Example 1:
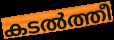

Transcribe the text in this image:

കടൽത്തീ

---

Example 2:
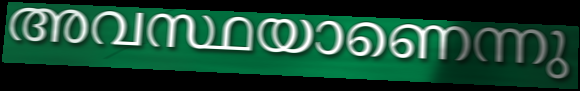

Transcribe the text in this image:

അവസ്ഥയാണെന്നു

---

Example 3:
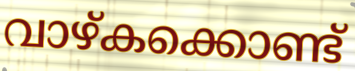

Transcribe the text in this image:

വാഴ്കക്കൊണ്ട്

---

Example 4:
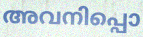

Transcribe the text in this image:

അവനിപ്പൊ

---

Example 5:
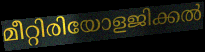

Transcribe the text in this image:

മീറ്റിരിയോളജിക്കൽ